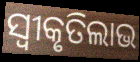
ସ୍ଵୀକୃତିଲାଭ